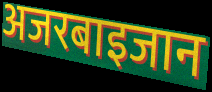
अजरबाइजान